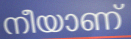
നീയാണ്